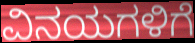
ವಿನಯಗಳಿಗೆ